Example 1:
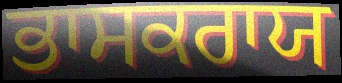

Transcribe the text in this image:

ਭਾਸਕਰਾਯ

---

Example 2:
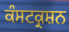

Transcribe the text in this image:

ਕੰਸਟਕ੍ਰਸ਼ਨ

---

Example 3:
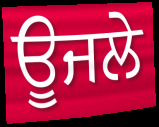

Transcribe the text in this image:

ਊਜਲੇ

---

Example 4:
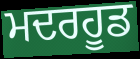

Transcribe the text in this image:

ਮਦਰਹੂਡ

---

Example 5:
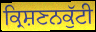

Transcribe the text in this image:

ਕ੍ਰਿਸ਼ਣਨਕੁੱਟੀ